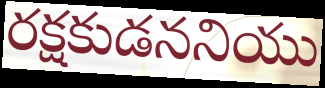
రక్షకుడననియు